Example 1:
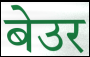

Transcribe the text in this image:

बेउर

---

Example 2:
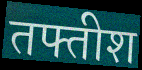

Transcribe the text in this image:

तफ्तीश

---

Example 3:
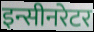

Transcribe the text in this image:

इन्सीनरेटर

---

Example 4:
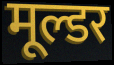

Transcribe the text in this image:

मूल्डर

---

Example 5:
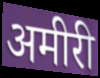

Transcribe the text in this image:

अमीरी